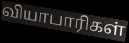
வியாபாரிகள்